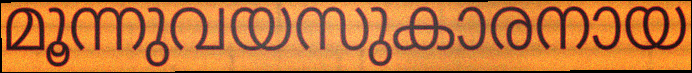
മൂന്നുവയസുകാരനായ